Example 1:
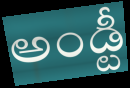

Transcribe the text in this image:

అండ్టీ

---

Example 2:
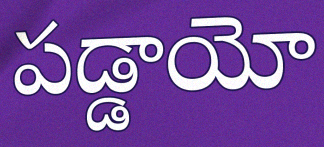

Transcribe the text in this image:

పడ్డాయో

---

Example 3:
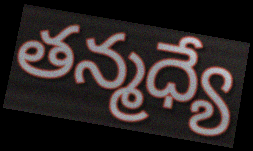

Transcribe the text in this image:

తన్మధ్యే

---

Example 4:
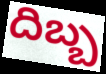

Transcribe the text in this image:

దిబ్బ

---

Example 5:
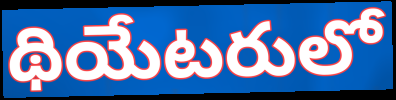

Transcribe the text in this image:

థియేటరులో